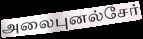
அலைபுனல்சேர்